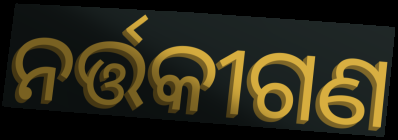
ନର୍ତ୍ତକୀଗଣ